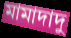
মামাদাদু